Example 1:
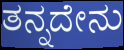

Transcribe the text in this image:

ತನ್ನದೇನು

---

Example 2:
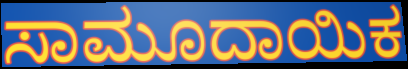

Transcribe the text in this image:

ಸಾಮೂದಾಯಿಕ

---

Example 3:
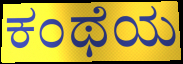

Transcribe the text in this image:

ಕಂಥೆಯ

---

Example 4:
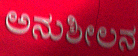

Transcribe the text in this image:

ಅನುಶೀಲನ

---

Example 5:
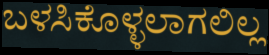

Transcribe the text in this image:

ಬಳಸಿಕೊಳ್ಳಲಾಗಲಿಲ್ಲ